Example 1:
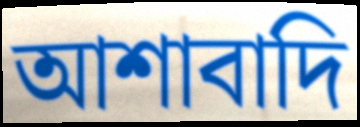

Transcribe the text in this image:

আশাবাদি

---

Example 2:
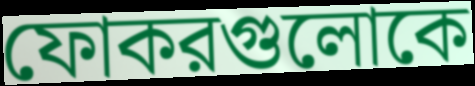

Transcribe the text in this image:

ফোকরগুলোকে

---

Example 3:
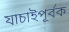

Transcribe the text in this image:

যাচাইপূর্বক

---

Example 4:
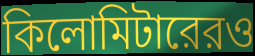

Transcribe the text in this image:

কিলোমিটারেরও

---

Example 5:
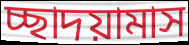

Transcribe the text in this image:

চ্ছাদয়ামাস